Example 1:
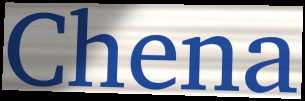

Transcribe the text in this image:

Chena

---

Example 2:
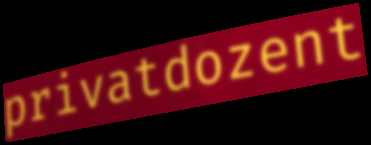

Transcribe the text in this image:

privatdozent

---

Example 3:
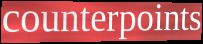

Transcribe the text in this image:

counterpoints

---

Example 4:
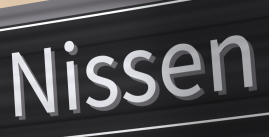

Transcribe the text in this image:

Nissen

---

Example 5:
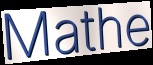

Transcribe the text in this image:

Mathe